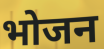
भोजन